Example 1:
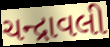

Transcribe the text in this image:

ચન્દ્રાવલી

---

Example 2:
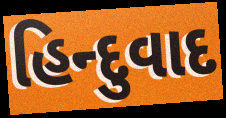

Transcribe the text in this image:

હિન્દુવાદ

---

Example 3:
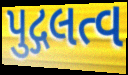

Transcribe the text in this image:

પુદ્ગલત્વ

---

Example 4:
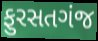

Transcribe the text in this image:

ફુરસતગંજ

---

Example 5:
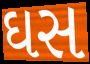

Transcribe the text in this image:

ઘસ